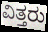
ವಿತ್ತರು